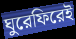
ঘুরেফিরেই